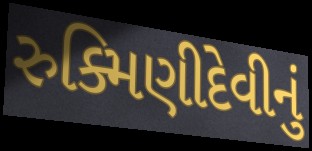
રુક્મિણીદેવીનું